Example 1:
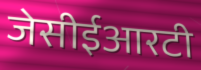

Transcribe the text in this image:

जेसीईआरटी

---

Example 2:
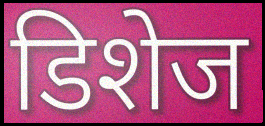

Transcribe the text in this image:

डिशेज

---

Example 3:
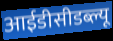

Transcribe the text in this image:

आईडीसीडब्ल्यू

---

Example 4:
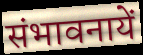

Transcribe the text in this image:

संभावनायें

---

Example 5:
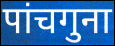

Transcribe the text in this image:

पांचगुना